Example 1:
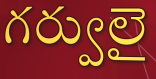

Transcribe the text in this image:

గర్వులై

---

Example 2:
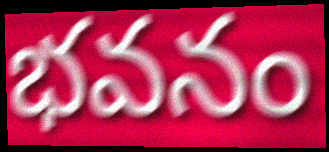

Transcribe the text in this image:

భవనం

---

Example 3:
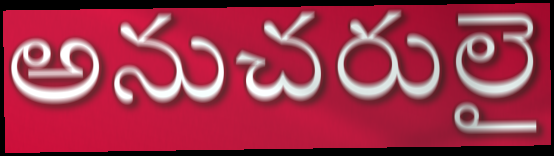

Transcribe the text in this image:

అనుచరులై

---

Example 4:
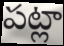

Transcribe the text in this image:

పట్లా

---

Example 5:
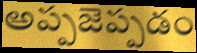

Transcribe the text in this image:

అప్పజెప్పడం